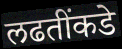
लढतींकडे